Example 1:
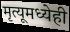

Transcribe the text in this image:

मृत्यूमध्येही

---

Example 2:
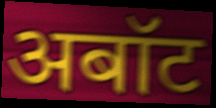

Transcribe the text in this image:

अबॉट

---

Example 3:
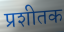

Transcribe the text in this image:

प्रशीतक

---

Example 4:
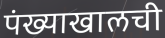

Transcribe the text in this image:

पंख्याखालची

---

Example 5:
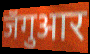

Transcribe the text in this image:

जॅगुआर